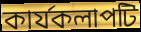
কার্যকলাপটি